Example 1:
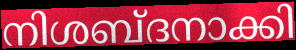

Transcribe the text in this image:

നിശബ്ദനാക്കി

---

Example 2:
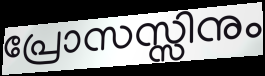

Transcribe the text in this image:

പ്രോസസ്സിനും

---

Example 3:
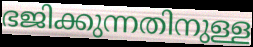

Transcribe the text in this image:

ഭജിക്കുന്നതിനുള്ള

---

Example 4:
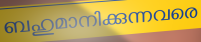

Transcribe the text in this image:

ബഹുമാനിക്കുന്നവരെ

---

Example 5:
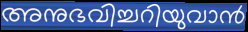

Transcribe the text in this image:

അനുഭവിച്ചറിയുവാൻ